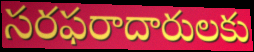
సరఫరాదారులకు